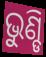
ଭୁଣ୍ଡି